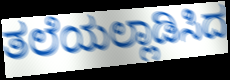
ತಲೆಯಲ್ಲಾಡಿಸಿದ